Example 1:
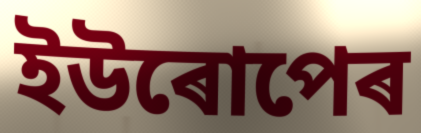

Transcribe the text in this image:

ইউৰোপেৰ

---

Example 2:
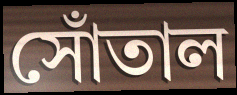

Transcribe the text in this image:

সোঁতাল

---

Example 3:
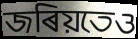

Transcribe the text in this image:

জৰিয়তেও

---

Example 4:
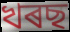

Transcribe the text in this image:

খৰছ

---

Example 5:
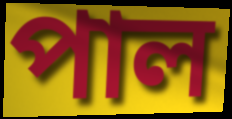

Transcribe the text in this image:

পাল